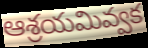
ఆశ్రయమివ్వక